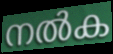
നൽക